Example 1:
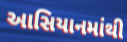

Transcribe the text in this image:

આસિયાનમાંથી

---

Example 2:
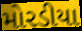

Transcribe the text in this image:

મોરડીયા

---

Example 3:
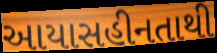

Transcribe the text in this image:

આયાસહીનતાથી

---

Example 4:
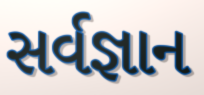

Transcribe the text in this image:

સર્વજ્ઞાન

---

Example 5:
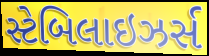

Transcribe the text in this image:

સ્ટેબિલાઇઝર્સ